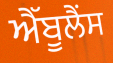
ਐੱਬੂਲੈਂਸ